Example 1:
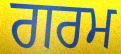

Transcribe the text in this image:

ਗਰਮ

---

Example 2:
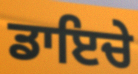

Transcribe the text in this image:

ਡਾਇਚੇ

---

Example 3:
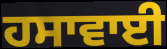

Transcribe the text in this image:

ਹਸਾਵਾਈ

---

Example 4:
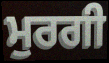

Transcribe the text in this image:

ਮੁਰਗੀ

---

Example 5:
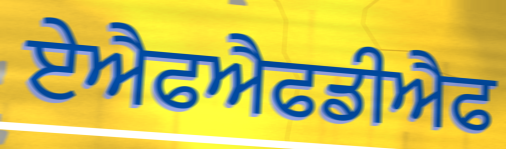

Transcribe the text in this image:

ਏਐਫਐਫਡੀਐਫ